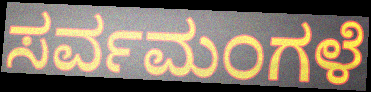
ಸರ್ವಮಂಗಳೆ